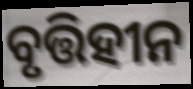
ବୃତ୍ତିହୀନ